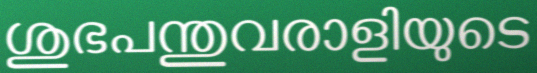
ശുഭപന്തുവരാളിയുടെ